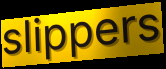
slippers